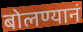
बोलण्यानं